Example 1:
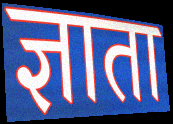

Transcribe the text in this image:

ज्ञाता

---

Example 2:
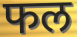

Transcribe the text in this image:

फल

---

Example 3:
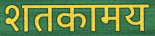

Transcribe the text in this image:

शतकामय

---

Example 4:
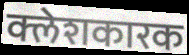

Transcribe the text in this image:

क्लेशकारक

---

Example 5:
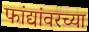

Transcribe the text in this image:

फांद्यांवरच्या